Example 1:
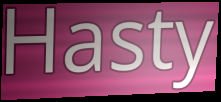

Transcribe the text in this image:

Hasty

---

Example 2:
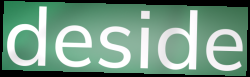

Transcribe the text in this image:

deside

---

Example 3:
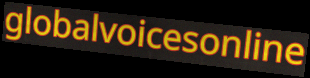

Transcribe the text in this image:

globalvoicesonline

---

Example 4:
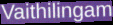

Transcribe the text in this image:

Vaithilingam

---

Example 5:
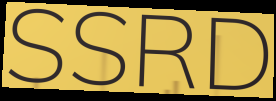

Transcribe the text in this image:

SSRD